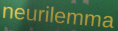
neurilemma